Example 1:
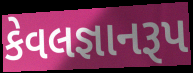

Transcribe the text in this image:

કેવલજ્ઞાનરૂપ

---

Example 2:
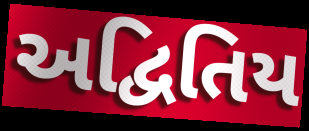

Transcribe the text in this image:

અદ્વિતિય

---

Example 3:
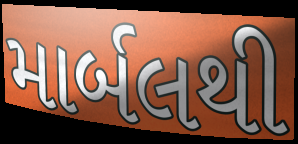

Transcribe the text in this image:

માર્બલથી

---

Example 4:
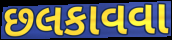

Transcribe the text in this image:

છલકાવવા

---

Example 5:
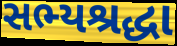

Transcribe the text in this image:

સભ્યશ્રદ્ધા